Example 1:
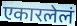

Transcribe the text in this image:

एकारलेलं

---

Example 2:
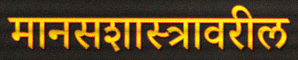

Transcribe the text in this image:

मानसशास्त्रावरील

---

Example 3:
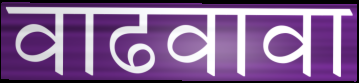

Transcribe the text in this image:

वाढवावा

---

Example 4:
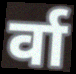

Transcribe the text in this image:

र्वा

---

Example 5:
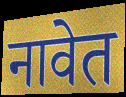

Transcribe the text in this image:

नावेत